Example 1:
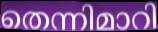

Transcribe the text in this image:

തെന്നിമാറി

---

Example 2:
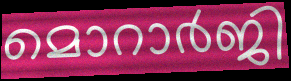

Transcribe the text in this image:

മൊറാർജി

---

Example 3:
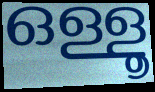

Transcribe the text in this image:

ഒള്ളൂ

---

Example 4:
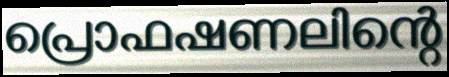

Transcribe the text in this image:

പ്രൊഫഷണലിന്റെ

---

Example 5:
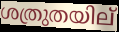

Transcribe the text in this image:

ശത്രുതയില്